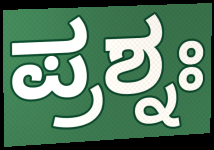
ಪ್ರಶ್ನಃ